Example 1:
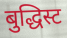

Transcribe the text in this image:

बुद्धिस्ट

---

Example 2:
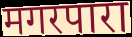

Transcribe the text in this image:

मगरपारा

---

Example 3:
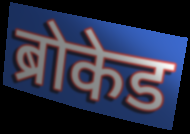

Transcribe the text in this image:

ब्रोकेड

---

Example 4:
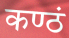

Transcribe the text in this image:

कण्ठं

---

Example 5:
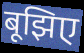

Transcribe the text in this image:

बूझिए